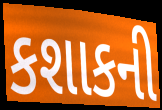
કશાકની